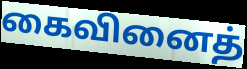
கைவினைத்